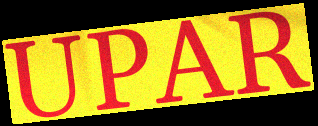
UPAR